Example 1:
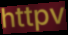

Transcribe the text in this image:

httpv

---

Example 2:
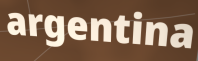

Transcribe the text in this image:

argentina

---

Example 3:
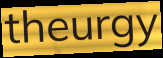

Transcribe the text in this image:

theurgy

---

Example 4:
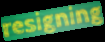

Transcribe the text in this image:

resigning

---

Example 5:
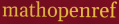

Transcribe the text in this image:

mathopenref